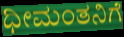
ಧೀಮಂತನಿಗೆ